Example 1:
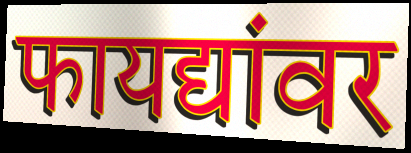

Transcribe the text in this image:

फायद्यांवर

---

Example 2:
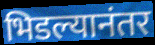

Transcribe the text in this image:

भिडल्यानंतर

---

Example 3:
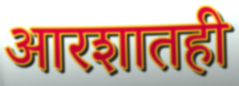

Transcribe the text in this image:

आरशातही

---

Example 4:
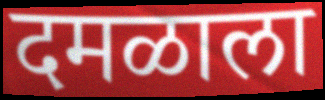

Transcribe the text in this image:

दमळाला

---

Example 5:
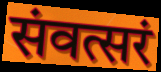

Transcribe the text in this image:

संवत्सरं